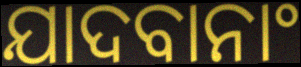
ଯାଦବାନାଂ